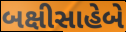
બક્ષીસાહેબે